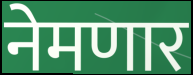
नेमणार